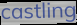
castling